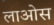
लाओस